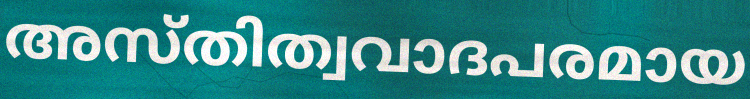
അസ്തിത്വവാദപരമായ